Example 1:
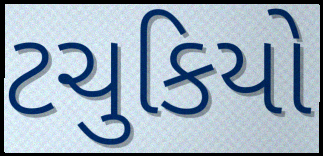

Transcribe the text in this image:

ટચુકિયો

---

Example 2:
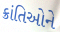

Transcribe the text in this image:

ક્રાંતિઓને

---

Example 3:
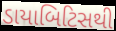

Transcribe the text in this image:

ડાયાબિટિસથી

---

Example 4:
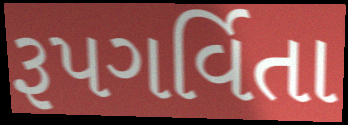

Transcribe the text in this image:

રૂપગર્વિતા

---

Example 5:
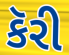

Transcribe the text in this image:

કૅરી